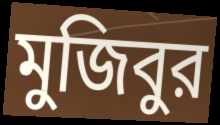
মুজিবুর